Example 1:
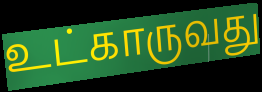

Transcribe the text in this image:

உட்காருவது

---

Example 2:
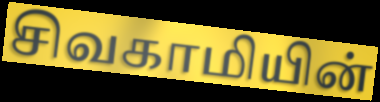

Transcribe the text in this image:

சிவகாமியின்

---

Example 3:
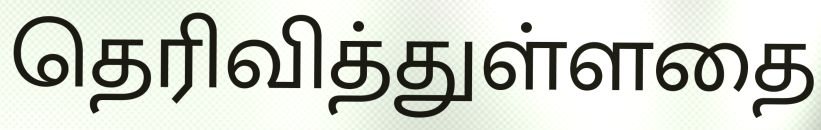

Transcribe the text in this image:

தெரிவித்துள்ளதை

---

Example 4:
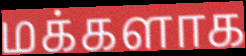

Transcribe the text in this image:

மக்களாக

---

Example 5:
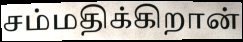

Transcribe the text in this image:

சம்மதிக்கிறான்